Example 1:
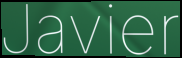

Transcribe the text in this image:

Javier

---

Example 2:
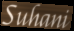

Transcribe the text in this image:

Suhani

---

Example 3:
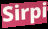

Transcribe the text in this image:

Sirpi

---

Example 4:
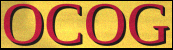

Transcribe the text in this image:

OCOG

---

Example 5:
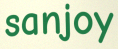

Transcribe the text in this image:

sanjoy